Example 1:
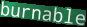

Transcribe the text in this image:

burnable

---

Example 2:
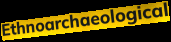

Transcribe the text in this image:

Ethnoarchaeological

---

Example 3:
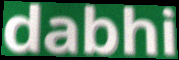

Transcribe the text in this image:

dabhi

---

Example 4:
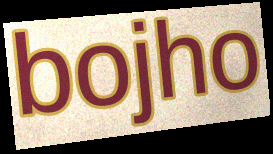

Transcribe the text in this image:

bojho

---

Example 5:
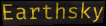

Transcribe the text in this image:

Earthsky